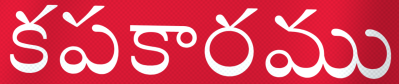
కపకారము